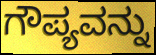
ಗೌಪ್ಯವನ್ನು